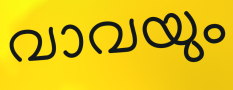
വാവയും